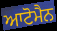
ਆਟੋਮੈਨ